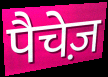
पैचेज़